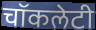
चॉकलेटी